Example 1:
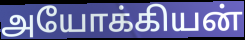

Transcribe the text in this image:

அயோக்கியன்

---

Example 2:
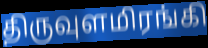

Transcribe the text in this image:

திருவுளமிரங்கி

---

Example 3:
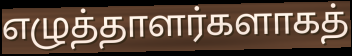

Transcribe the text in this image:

எழுத்தாளர்களாகத்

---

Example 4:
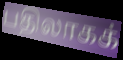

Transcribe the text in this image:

பதிலாகக்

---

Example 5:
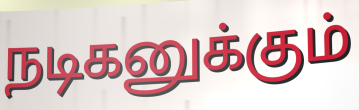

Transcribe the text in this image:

நடிகனுக்கும்